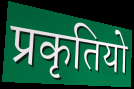
प्रकृतियो